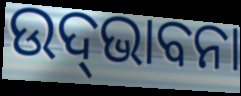
ଉଦ୍‍ଭାବନା